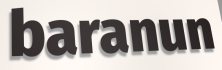
baranun